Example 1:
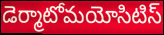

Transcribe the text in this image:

డెర్మాటోమయోసిటిస్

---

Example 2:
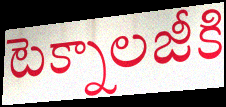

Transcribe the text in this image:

టెక్నాలజీకి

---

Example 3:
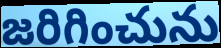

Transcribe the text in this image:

జరిగించును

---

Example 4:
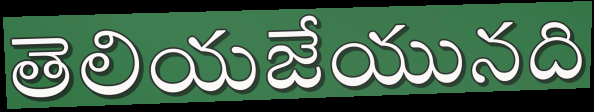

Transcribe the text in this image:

తెలియజేయునది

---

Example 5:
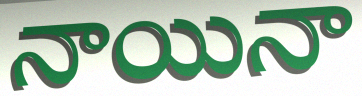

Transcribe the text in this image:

నాయినా